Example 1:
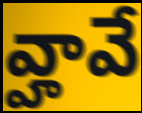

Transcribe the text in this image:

వ్హావే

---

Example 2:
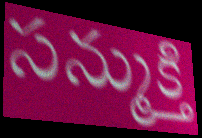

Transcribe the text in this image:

సన్ముక్తి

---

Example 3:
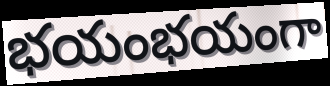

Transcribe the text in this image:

భయంభయంగా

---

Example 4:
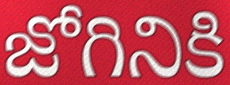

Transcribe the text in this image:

జోగినికి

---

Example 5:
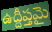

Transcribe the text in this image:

ఉద్దీప్తమై